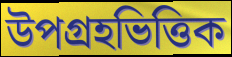
উপগ্রহভিত্তিক